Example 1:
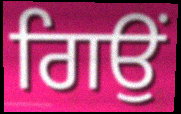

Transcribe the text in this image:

ਗਿਉਂ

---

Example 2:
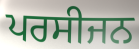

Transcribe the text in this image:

ਪਰਸੀਜਨ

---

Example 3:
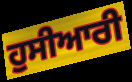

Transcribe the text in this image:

ਹੁਸੀਆਰੀ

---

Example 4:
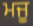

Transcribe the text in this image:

ਮਜੂ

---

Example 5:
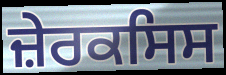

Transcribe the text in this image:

ਜ਼ੇਰਕਸਿਸ